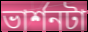
ভার্শনটা